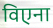
विएना